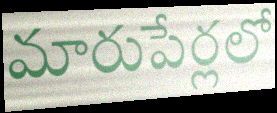
మారుపేర్లలో